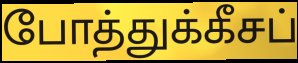
போத்துக்கீசப்